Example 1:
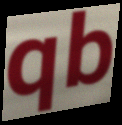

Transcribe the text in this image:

qb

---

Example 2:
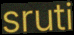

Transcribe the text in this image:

sruti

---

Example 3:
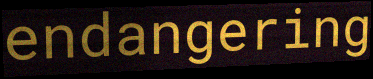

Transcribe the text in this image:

endangering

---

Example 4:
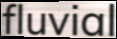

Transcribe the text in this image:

fluvial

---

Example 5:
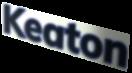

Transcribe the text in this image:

Keaton